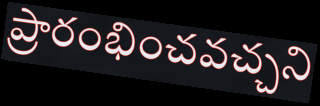
ప్రారంభించవచ్చని